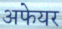
अफेयर